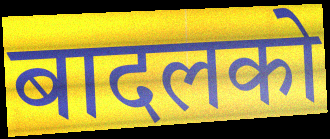
बादलको